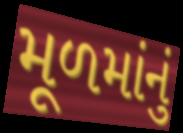
મૂળમાંનું